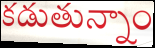
కడుతున్నాం